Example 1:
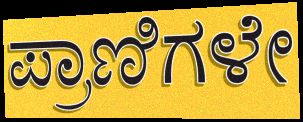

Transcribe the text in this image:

ಪ್ರಾಣಿಗಳೇ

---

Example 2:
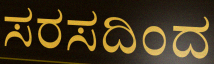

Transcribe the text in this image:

ಸರಸದಿಂದ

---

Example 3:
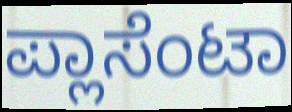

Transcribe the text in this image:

ಪ್ಲಾಸೆಂಟಾ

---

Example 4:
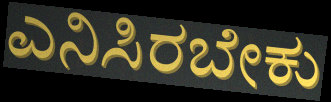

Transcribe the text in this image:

ಎನಿಸಿರಬೇಕು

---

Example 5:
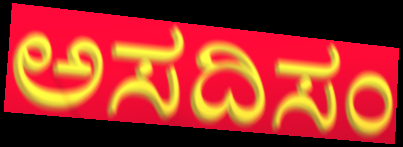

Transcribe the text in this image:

ಅಸದಿಸಂ